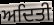
ਅਦਿਤੀ